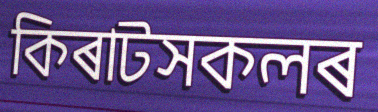
কিৰাটসকলৰ